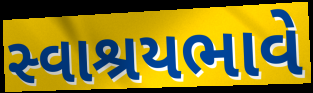
સ્વાશ્રયભાવે